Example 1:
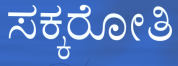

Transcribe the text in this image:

ಸಕ್ಕರೋತಿ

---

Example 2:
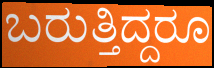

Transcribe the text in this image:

ಬರುತ್ತಿದ್ದರೂ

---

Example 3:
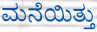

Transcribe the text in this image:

ಮನೆಯಿತ್ತು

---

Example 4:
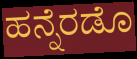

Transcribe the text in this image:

ಹನ್ನೆರಡೊ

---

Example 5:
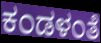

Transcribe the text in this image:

ಕಂಡಳಂತೆ